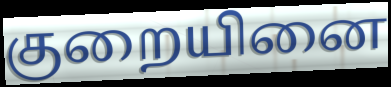
குறையினை